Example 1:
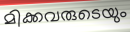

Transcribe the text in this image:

മിക്കവരുടെയും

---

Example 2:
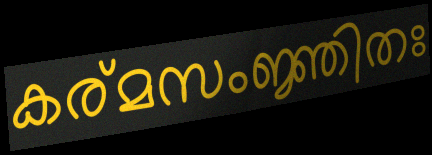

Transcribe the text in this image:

കര്മസംജ്ഞിതഃ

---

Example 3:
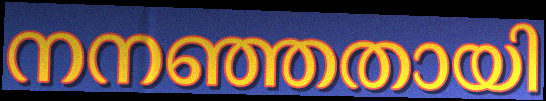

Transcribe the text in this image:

നനഞ്ഞതായി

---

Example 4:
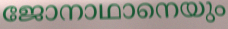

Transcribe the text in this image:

ജോനാഥാനെയും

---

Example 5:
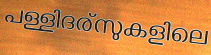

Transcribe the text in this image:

പള്ളിദര്സുകളിലെ